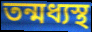
তন্মধ্যস্থ